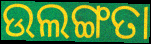
ଉଲଙ୍ଗତା